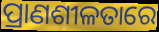
ପ୍ରାଣଶୀଳତାରେ